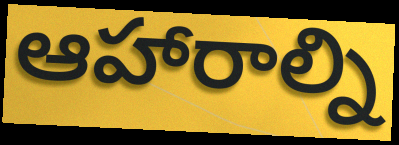
ఆహారాల్ని